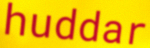
huddar